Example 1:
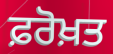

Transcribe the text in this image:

ਫ਼ਰੋਖ਼ਤ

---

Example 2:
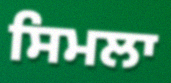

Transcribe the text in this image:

ਸਿਮਲਾ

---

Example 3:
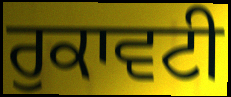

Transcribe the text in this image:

ਰੁਕਾਵਟੀ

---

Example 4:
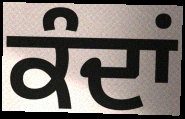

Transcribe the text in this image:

ਕੰਦਾਂ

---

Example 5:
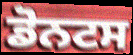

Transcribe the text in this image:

ਡੋਨਟਸ